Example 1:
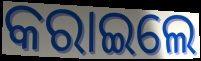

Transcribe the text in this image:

କରାଇଲେ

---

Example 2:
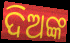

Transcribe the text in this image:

ଦିଅଙ୍କ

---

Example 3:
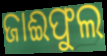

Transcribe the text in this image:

ଜାଈଫୁଲ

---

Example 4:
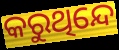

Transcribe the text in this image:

କରୁଥିନ୍ଦେ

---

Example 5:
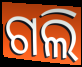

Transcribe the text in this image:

ଗଲି